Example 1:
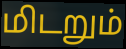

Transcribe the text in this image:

மிடறும்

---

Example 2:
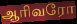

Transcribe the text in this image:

ஆரிவரோ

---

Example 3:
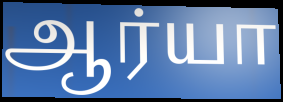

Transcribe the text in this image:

ஆர்யா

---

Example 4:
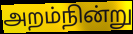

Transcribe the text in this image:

அறம்நின்று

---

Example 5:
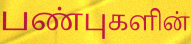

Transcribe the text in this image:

பண்புகளின்